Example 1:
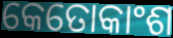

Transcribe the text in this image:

କେତୋକାଂଶ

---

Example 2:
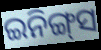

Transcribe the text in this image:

ଇନିଙ୍ଗ୍‌ସ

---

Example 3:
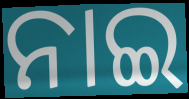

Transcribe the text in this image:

ନାଇ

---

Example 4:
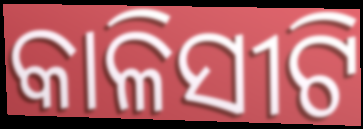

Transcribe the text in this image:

କାଳିସୀଟି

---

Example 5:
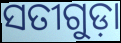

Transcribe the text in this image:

ସତୀଗୁଡ଼ା